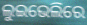
ଲୁଇଭେଲିରେ